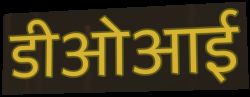
डीओआई